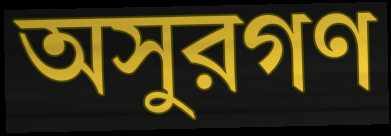
অসুরগণ